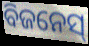
ବିଜନେସ୍